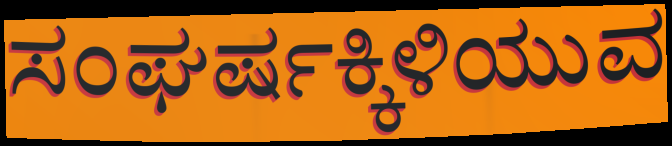
ಸಂಘರ್ಷಕ್ಕಿಳಿಯುವ